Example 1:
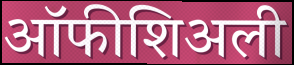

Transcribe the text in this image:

ऑफीशिअली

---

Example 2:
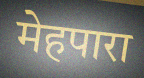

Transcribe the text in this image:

मेहपारा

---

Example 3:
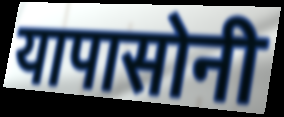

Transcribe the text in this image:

यापासोनी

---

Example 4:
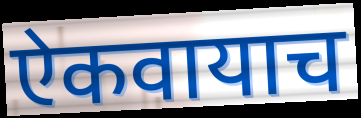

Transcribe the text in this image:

ऐकवायाच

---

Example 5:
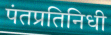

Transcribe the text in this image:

पंतप्रतिनिधी